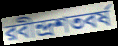
রবীন্দ্রশতবর্ষ